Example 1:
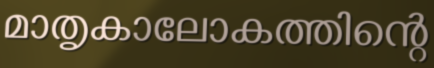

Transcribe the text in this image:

മാതൃകാലോകത്തിന്റെ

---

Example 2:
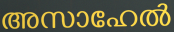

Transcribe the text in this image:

അസാഹേൽ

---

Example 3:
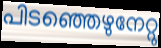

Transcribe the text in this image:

പിടഞ്ഞെഴുനേറ്റു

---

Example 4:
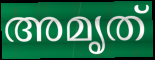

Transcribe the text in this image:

അമൃത്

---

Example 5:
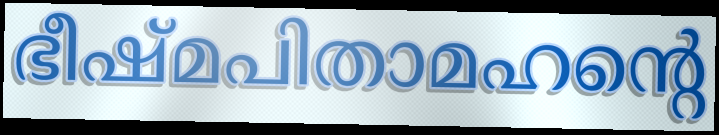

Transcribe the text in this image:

ഭീഷ്മപിതാമഹന്റെ